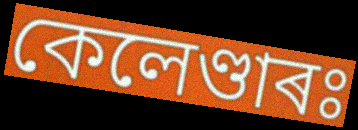
কেলেণ্ডাৰঃ